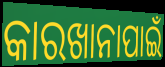
କାରଖାନାପାଇଁ